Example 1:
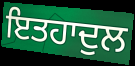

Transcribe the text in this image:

ਇਤਹਾਦੁਲ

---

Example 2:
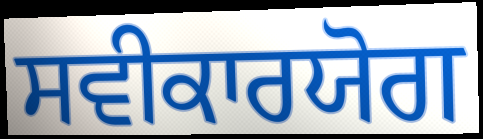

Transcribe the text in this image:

ਸਵੀਕਾਰਯੋਗ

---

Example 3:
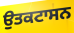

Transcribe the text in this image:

ਉਤਕਟਾਸਨ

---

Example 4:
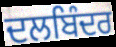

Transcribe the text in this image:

ਦਲਬਿੰਦਰ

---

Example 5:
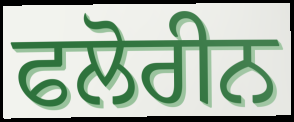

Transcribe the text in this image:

ਫਲੋਰੀਨ